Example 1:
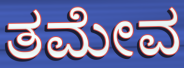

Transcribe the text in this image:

ತಮೇವ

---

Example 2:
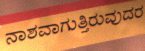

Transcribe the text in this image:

ನಾಶವಾಗುತ್ತಿರುವುದರ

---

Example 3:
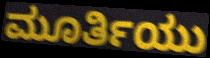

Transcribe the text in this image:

ಮೂರ್ತಿಯು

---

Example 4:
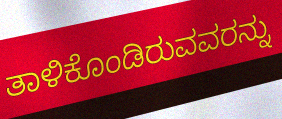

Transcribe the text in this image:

ತಾಳಿಕೊಂಡಿರುವವರನ್ನು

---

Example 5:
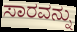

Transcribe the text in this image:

ಸಾರವನ್ನು